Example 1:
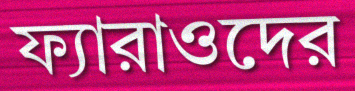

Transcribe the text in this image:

ফ্যারাওদের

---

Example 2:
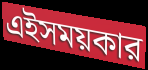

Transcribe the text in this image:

এইসময়কার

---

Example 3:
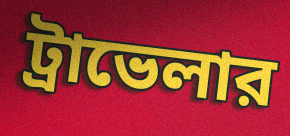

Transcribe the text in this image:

ট্রাভেলার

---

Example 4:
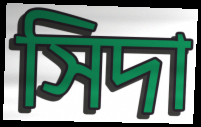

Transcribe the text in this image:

সিদা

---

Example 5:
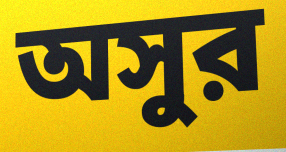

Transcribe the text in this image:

অসুর